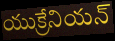
యుక్రేనియన్